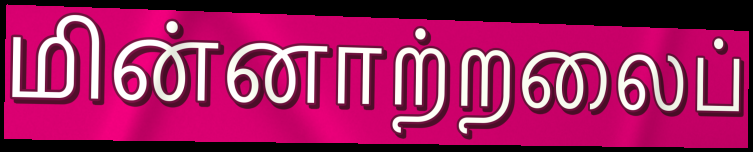
மின்னாற்றலைப்